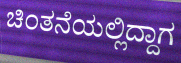
ಚಿಂತನೆಯಲ್ಲಿದ್ದಾಗ